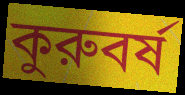
কুরুবর্ষ